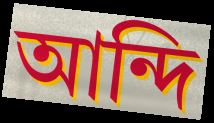
আন্দি